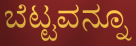
ಬೆಟ್ಟವನ್ನೂ